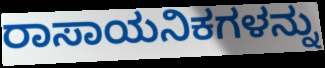
ರಾಸಾಯನಿಕಗಳನ್ನು